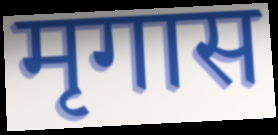
मृगास